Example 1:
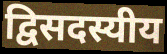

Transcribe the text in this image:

द्विसदस्यीय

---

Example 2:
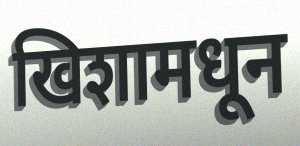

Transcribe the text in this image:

खिशामधून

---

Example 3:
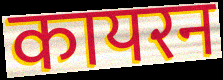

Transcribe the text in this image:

कायरन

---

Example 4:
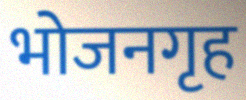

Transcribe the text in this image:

भोजनगृह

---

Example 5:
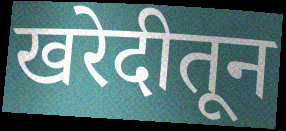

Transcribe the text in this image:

खरेदीतून